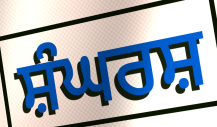
ਸ਼ੰਘਰਸ਼